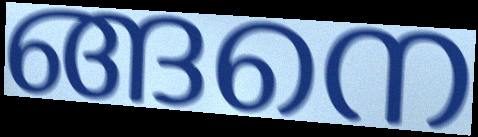
ങ്ങനെ